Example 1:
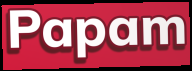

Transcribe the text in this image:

Papam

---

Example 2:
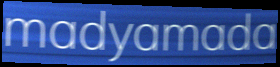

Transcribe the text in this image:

madyamada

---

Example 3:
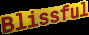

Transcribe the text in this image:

Blissful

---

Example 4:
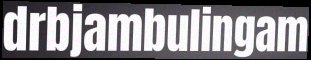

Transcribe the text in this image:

drbjambulingam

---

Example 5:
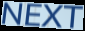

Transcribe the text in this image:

NEXT